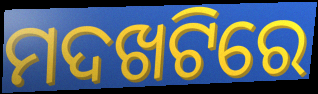
ମଦଖଟିରେ